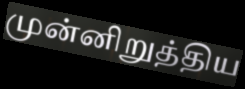
முன்னிறுத்திய